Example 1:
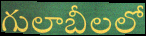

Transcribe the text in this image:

గులాబీలలో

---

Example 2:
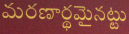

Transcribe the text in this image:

మరణార్థమైనట్టు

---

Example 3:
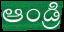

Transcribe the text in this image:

ఆండ్రి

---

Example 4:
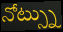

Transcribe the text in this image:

నోట్స్ను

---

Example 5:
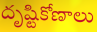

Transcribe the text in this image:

దృష్టికోణాలు